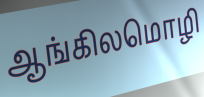
ஆங்கிலமொழி